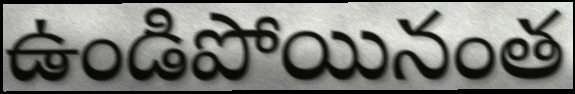
ఉండిపోయినంత